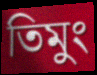
তিমুং